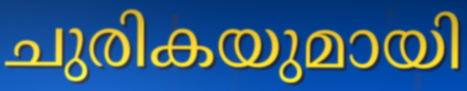
ചുരികയുമായി